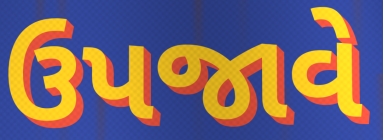
ઉપજાવે